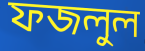
ফজলুল